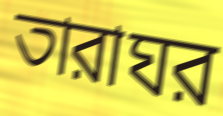
তারাঘর